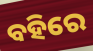
ବହିରେ